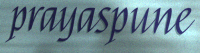
prayaspune